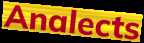
Analects